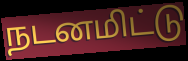
நடனமிட்டு